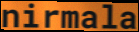
nirmala